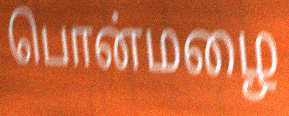
பொன்மழை